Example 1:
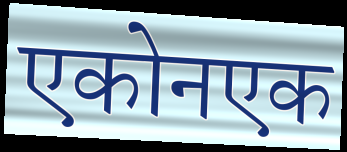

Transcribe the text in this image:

एकोनएक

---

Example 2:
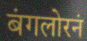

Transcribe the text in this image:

बंगलोरनं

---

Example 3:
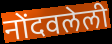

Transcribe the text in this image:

नोंदवलेली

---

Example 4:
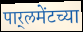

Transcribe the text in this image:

पार्लमेंटच्या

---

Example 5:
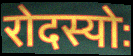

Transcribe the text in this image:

रोदस्योः